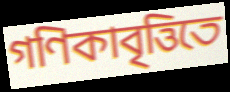
গণিকাবৃত্তিতে